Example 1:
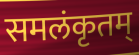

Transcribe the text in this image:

समलंकृतम्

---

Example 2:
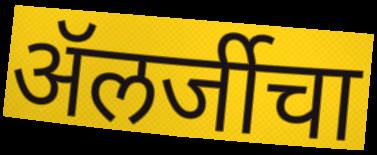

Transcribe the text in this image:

ॲलर्जीचा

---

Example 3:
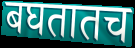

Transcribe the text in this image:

बघतातच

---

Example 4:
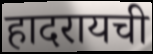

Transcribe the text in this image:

हादरायची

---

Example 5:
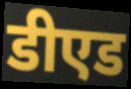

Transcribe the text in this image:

डीएड